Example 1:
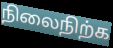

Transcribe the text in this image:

நிலைநிற்க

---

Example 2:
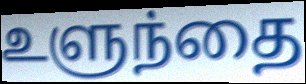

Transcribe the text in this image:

உளுந்தை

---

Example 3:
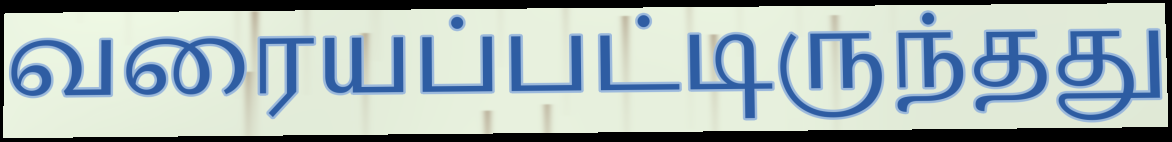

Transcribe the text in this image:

வரையப்பட்டிருந்தது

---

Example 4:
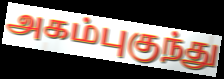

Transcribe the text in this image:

அகம்புகுந்து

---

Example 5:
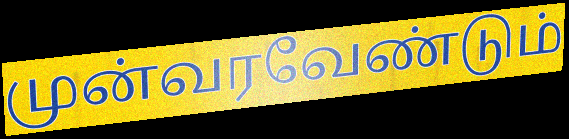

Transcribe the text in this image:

முன்வரவேண்டும்